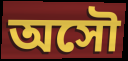
অসৌ